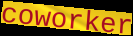
coworker